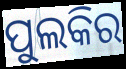
ପୁଲକିର